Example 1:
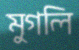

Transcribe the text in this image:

মুগলি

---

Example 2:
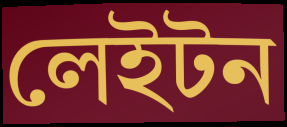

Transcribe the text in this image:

লেইটন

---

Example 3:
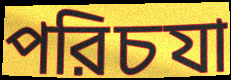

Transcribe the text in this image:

পরিচযা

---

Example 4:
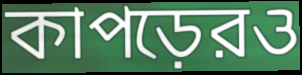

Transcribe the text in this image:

কাপড়েরও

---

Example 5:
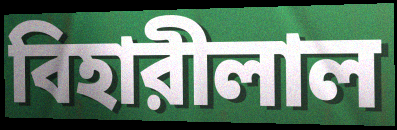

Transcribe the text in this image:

বিহারীলাল